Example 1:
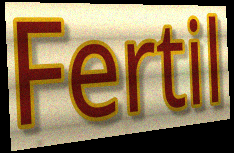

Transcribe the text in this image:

Fertil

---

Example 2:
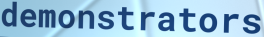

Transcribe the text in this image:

demonstrators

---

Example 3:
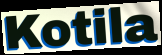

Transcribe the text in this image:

Kotila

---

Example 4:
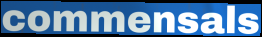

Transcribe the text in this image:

commensals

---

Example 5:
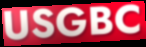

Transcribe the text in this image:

USGBC